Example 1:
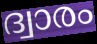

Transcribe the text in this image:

ദ്വാരം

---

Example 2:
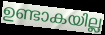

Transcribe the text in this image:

ഉണ്ടാകയില്ല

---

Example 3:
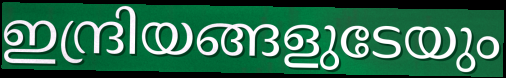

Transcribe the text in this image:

ഇന്ദ്രിയങ്ങളുടേയും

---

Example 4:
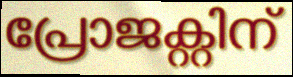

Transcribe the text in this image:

പ്രോജക്റ്റിന്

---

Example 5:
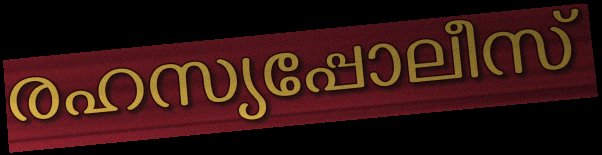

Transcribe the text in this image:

രഹസ്യപ്പോലീസ്